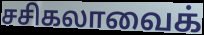
சசிகலாவைக்